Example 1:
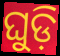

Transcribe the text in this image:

ଘୁଡ଼ି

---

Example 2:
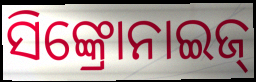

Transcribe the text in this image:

ସିଙ୍କ୍ରୋନାଇଜ୍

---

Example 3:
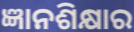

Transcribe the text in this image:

ଜ୍ଞାନଶିକ୍ଷାର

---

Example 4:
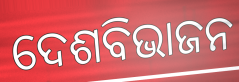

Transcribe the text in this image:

ଦେଶବିଭାଜନ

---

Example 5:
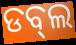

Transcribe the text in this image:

ଡବ୍‌ଲ